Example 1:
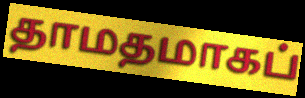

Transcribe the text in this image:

தாமதமாகப்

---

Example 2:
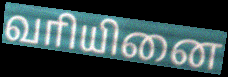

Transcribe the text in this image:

வரியினை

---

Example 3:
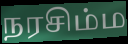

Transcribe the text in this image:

நரசிம்ம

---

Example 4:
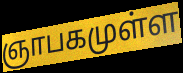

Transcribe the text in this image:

ஞாபகமுள்ள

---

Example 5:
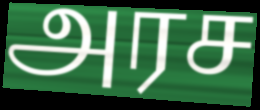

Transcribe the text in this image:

அரச